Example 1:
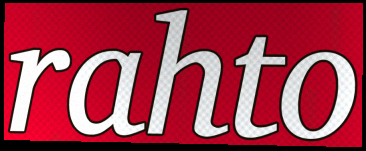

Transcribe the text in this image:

rahto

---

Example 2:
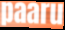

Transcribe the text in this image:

paaru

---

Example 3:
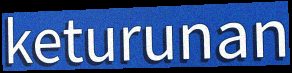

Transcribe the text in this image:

keturunan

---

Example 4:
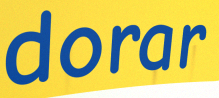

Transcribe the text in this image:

dorar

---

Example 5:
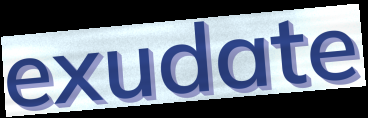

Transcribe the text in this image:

exudate